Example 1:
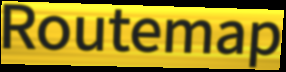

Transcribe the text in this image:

Routemap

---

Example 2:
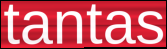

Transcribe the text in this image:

tantas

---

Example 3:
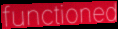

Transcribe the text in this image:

functioned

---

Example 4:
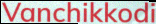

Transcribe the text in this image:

Vanchikkodi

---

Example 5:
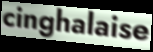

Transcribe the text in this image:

cinghalaise